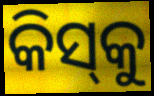
କିସ୍‌କୁ